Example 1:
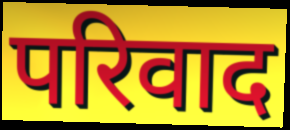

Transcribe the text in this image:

परिवाद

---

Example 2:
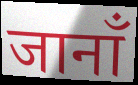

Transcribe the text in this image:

जानाँ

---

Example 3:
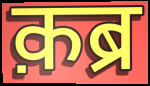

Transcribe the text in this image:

क़ब्र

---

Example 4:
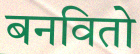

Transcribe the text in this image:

बनवितो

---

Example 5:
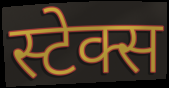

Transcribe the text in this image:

स्टेक्स